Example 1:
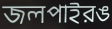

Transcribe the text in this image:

জলপাইরঙ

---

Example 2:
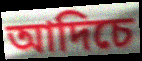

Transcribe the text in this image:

আদিচে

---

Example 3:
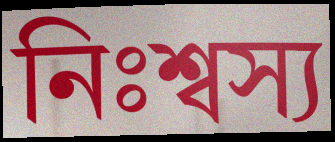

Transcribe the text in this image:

নিঃশ্বস্য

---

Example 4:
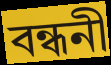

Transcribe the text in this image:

বন্ধনী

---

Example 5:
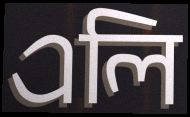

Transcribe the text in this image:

এলি